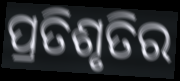
ପ୍ରତିଶୃତିର